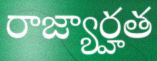
రాజ్యార్హత